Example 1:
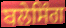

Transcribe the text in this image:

ਬਲੇਸਿੰਗ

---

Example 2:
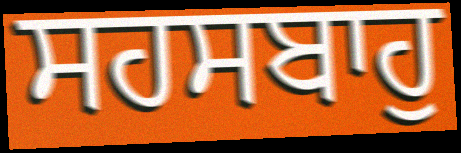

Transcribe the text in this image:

ਸਹਸਬਾਹੁ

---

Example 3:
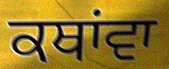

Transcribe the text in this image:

ਕਥਾਂਵਾ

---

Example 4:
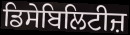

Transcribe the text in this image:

ਡਿਸੇਬਿਲਿਟੀਜ਼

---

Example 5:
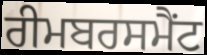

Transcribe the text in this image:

ਰੀਮਬਰਸਮੈਂਟ